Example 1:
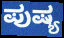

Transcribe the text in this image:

ಪುಷ್ಯ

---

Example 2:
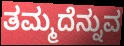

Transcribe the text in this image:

ತಮ್ಮದೆನ್ನುವ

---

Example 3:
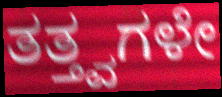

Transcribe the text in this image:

ತತ್ತ್ವಗಳೇ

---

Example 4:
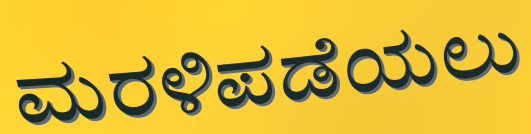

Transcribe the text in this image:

ಮರಳಿಪಡೆಯಲು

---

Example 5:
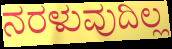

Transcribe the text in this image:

ನರಳುವುದಿಲ್ಲ